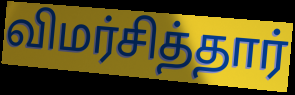
விமர்சித்தார்